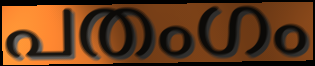
പതംഗം